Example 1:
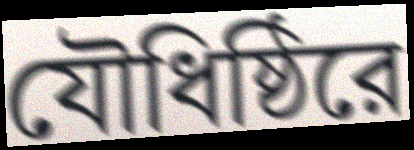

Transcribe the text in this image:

যৌধিষ্ঠিরে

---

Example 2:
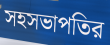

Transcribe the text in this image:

সহসভাপতির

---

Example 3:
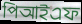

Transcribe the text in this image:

পিআইএফ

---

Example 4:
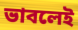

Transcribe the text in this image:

ভাবলেই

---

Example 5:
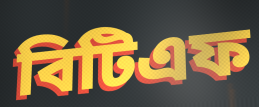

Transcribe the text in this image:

বিটিএফ